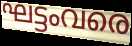
ഘട്ടംവരെ